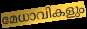
മേധാവികളും